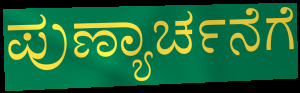
ಪುಣ್ಯಾರ್ಚನೆಗೆ